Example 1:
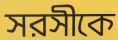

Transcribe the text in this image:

সরসীকে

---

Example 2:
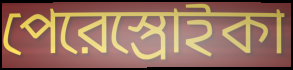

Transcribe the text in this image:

পেরেস্ত্রোইকা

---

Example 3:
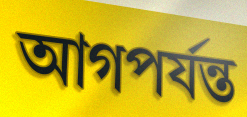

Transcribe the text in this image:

আগপর্যন্ত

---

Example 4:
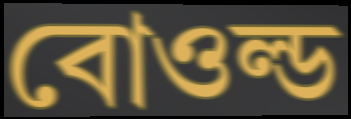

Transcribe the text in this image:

বোওল্ড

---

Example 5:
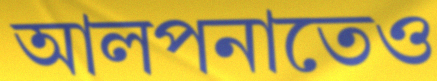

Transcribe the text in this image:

আলপনাতেও